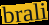
brali